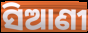
ସିଆଣୀ